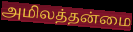
அமிலத்தன்மை